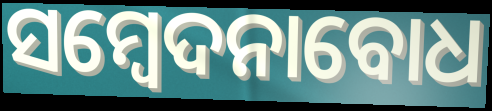
ସମ୍ବେଦନାବୋଧ